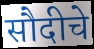
सौदीचे